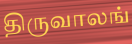
திருவாலங்